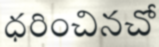
ధరించినచో